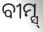
ବୀମ୍ସ୍